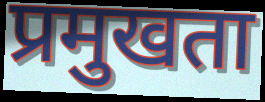
प्रमुखता